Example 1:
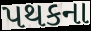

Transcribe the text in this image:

પથકના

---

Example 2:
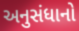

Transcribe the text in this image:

અનુસંધાનો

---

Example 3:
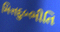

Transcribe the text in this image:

મિત્તદુબ્ભીતિ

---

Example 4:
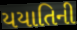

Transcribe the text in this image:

યયાતિની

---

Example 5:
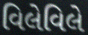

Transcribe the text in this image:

વિલેવિલે